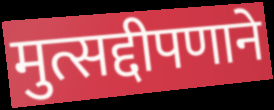
मुत्सद्दीपणाने